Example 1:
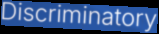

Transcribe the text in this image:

Discriminatory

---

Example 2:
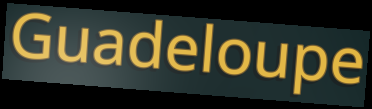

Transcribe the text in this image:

Guadeloupe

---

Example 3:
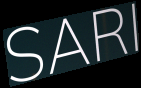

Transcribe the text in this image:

SARI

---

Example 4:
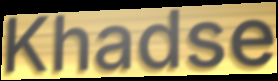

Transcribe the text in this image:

Khadse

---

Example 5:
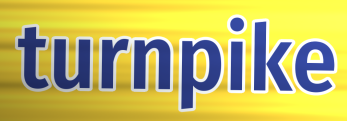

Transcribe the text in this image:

turnpike